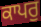
ਕਾਪਰੁ